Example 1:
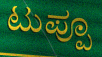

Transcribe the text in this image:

ಟುಪ್ಪೂ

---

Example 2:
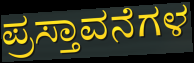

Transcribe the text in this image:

ಪ್ರಸ್ತಾವನೆಗಳ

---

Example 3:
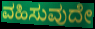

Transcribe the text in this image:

ವಹಿಸುವುದೇ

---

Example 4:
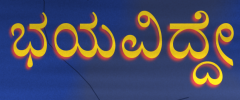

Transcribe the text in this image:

ಭಯವಿದ್ದೇ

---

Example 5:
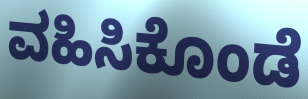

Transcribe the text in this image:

ವಹಿಸಿಕೊಂಡೆ